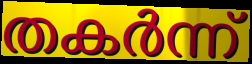
തകർന്ന്